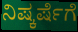
ನಿಷ್ಕರ್ಷೆಗೆ